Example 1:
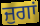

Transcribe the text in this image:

ਜੁਗਾਂ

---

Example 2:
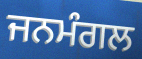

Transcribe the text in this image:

ਜਨਮੰਗਲ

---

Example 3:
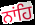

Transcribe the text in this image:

ਨਾਂਹਿ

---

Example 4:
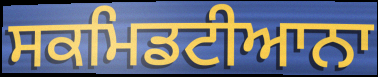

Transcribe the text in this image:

ਸਕਮਿਡਟੀਆਨਾ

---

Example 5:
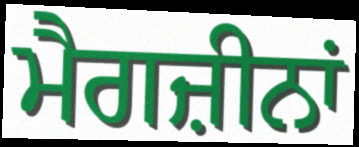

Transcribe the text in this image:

ਮੈਗਜ਼ੀਨਾਂ